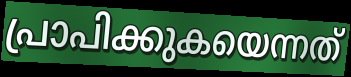
പ്രാപിക്കുകയെന്നത്